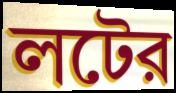
লটের